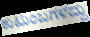
ಕುಟುಂಬಗಳದ್ದು